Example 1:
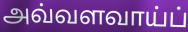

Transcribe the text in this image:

அவ்வளவாய்ப்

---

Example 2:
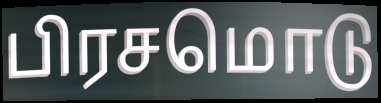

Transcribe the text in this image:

பிரசமொடு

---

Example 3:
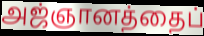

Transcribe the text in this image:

அஜ்ஞானத்தைப்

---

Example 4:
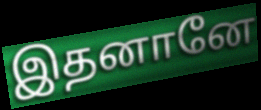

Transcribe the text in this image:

இதனானே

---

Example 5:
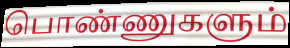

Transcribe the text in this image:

பொண்ணுகளும்